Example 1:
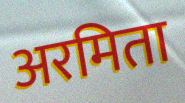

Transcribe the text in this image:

अरमिता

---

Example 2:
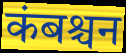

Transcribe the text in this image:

कंबश्चन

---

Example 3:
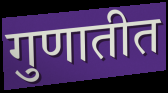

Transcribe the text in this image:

गुणातीत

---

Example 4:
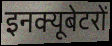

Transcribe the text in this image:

इनक्यूबेटरों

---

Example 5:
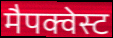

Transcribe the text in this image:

मैपक्वेस्ट